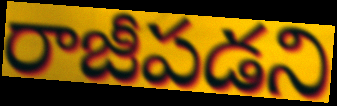
రాజీపడని